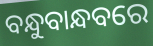
ବନ୍ଧୁବାନ୍ଧବରେ